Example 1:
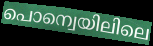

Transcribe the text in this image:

പൊന്വെയിലിലെ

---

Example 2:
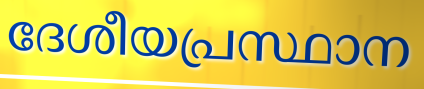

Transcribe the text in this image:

ദേശീയപ്രസ്ഥാന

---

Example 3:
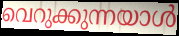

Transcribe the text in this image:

വെറുക്കുന്നയാൾ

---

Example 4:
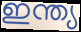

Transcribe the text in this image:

ഇന്ത്യ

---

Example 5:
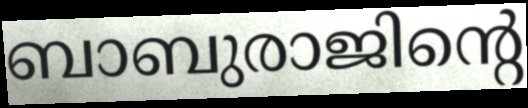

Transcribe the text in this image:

ബാബുരാജിന്റെ